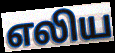
எலிய